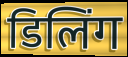
डिलिंग